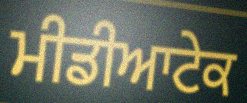
ਮੀਡੀਆਟੇਕ